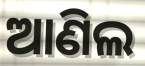
ଆଣିଲ